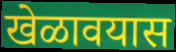
खेळावयास